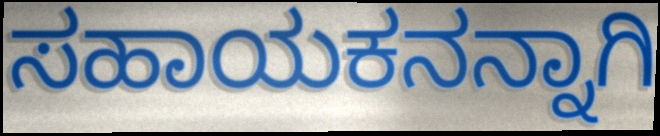
ಸಹಾಯಕನನ್ನಾಗಿ